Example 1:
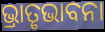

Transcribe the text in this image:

ଭ୍ରାତୃଭାବନା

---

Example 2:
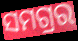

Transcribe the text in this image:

ସମଗ୍ରର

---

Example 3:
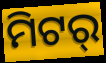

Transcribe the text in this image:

ମିଟର୍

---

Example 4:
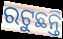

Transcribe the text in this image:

ରଟୁଛନ୍ତି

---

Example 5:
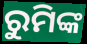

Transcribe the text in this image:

ରୁମିଙ୍କ